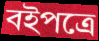
বইপত্রে